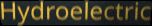
Hydroelectric